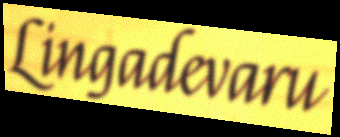
Lingadevaru